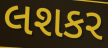
લશકર